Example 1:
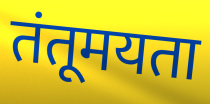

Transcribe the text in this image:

तंतूमयता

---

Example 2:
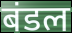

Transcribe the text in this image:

बंडल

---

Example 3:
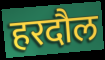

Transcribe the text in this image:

हरदौल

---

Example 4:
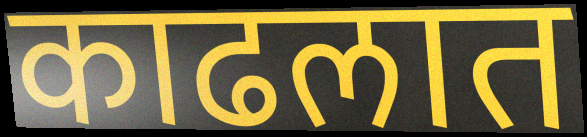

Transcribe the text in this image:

काढलात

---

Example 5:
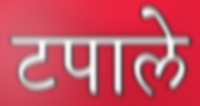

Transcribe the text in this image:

टपाले